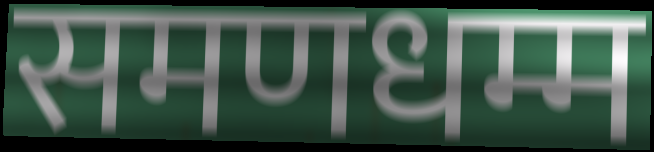
समणधम्म